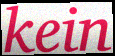
kein